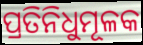
ପ୍ରତିନିଧୁମୂଳକ